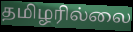
தமிழரில்லை